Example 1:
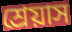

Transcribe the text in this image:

শ্রেয়াস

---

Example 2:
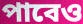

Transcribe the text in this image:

পাবেও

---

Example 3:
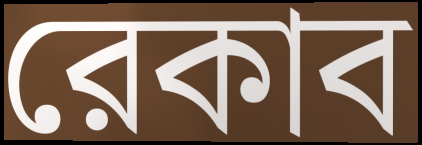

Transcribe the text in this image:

রেকাব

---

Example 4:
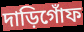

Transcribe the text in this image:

দাড়িগোঁফ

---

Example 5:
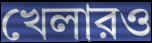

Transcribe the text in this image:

খেলারও